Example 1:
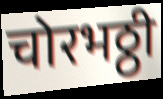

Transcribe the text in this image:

चोरभठ्ठी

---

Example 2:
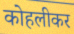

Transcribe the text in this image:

कोहलीकर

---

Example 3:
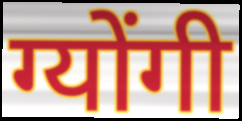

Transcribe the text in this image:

ग्योंगी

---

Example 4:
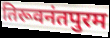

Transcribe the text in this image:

तिरूवनंतपुरम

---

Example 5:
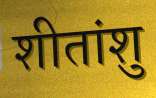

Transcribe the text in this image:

शीतांशु